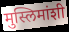
मुस्लिमांशी